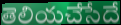
తెలియచేసేదే